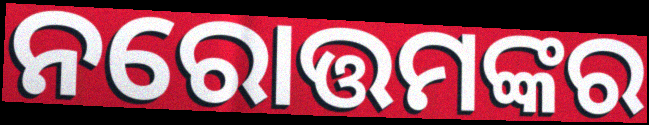
ନରୋତ୍ତମଙ୍କର